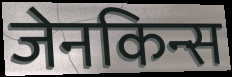
जेनकिन्स